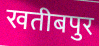
खतीबपुर